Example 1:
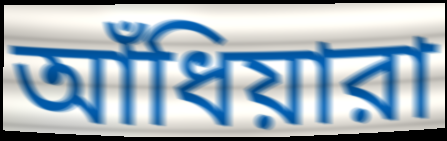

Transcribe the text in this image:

আঁধিয়ারা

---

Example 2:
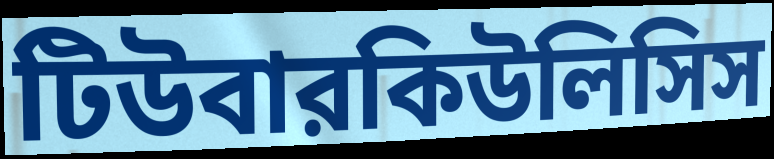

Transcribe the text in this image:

টিউবারকিউলিসিস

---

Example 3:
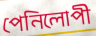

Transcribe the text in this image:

পেনিলোপী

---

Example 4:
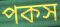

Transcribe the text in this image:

পকস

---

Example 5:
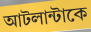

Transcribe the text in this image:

আটলান্টাকে